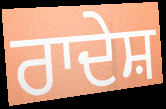
ਰਾਦੇਸ਼